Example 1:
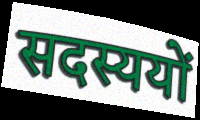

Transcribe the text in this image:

सदस्ययों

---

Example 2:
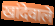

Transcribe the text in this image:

खांदेवाले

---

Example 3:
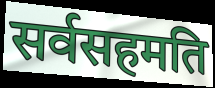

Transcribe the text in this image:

सर्वसहमति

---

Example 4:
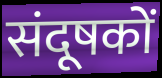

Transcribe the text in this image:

संदूषकों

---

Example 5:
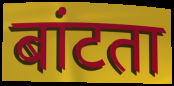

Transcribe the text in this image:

बांटता